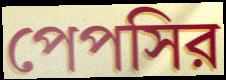
পেপসির